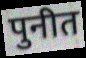
पुनीत